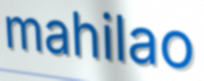
mahilao